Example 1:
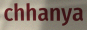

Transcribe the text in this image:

chhanya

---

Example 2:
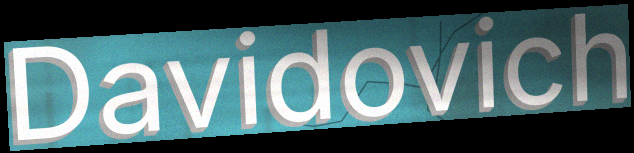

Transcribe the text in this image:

Davidovich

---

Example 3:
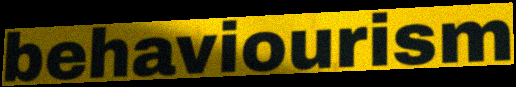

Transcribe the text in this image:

behaviourism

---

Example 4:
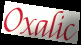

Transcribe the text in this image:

Oxalic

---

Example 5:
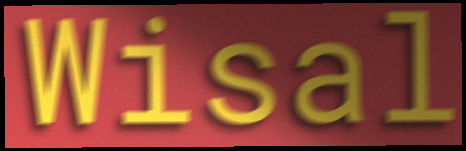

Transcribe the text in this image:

Wisal